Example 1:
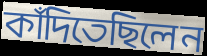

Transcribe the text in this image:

কাঁদিতেছিলেন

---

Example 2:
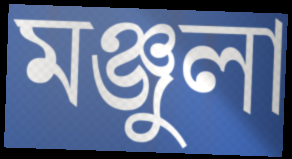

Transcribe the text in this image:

মঞ্জুলা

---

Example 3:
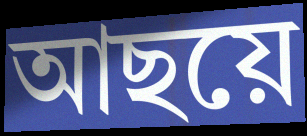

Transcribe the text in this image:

আছয়ে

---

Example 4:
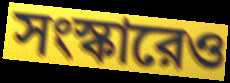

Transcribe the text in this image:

সংস্কারেও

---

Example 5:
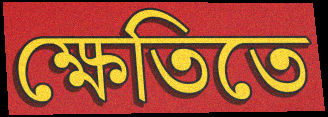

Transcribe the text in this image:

ক্ষেতিতে